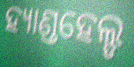
ହ୍ୟାଣ୍ଡହେଲ୍ଡ